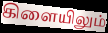
கிளையிலும்